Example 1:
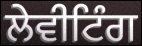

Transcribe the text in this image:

ਲੇਵੀਟਿੰਗ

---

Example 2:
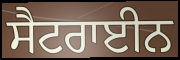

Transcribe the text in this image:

ਸੈਟਰਾਈਨ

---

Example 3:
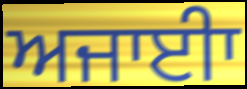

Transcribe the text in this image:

ਅਜਾਈਾ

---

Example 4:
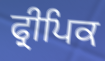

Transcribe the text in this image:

ਫ੍ਰੀਪਿਕ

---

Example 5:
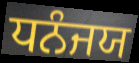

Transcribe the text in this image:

ਧਨੰਜਯ